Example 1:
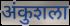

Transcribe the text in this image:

अंकुशला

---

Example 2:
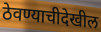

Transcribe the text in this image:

ठेवण्याचीदेखील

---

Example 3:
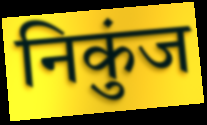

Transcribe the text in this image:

निकुंज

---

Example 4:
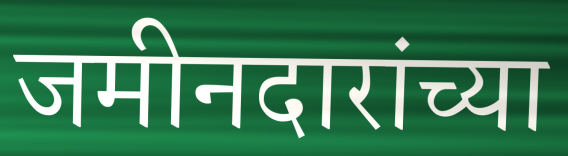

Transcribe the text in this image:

जमीनदारांच्या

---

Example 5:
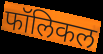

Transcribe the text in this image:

फॉलिकल